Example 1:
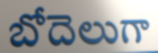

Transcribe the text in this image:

బోదెలుగా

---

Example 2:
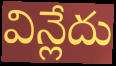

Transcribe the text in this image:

విన్లేదు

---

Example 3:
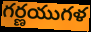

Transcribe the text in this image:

గర్ణయుగళ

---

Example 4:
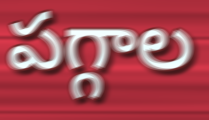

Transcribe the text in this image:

పగ్గాల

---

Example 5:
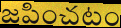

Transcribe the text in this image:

జపించటం